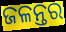
ଜଳନ୍ତର